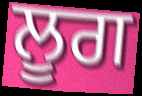
ਲੂਗ